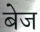
बेज